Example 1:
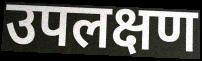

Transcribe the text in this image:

उपलक्षण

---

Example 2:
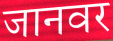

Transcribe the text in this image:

जानवर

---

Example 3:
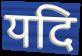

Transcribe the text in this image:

यदि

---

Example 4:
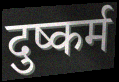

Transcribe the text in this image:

दुष्कर्म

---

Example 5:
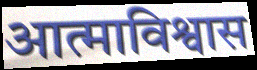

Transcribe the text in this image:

आत्माविश्वास